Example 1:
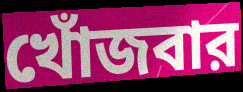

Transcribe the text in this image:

খোঁজবার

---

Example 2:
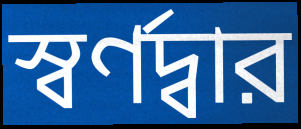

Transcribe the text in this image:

স্বর্ণদ্বার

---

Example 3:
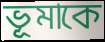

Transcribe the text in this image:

ভূমাকে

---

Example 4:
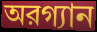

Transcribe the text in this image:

অরগ্যান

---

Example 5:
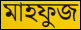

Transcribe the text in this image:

মাহফুজ